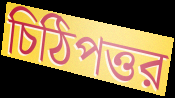
চিঠিপত্তর